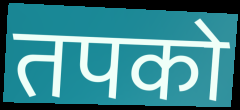
तपको